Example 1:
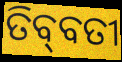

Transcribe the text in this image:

ତିବ୍‌ବତୀ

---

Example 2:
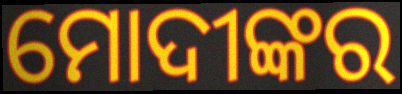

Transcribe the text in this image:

ମୋଦୀଙ୍କର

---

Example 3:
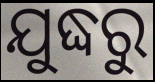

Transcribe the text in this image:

ଯୁଦ୍ଧରୁ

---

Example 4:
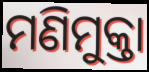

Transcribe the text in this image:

ମଣିମୁକ୍ତା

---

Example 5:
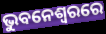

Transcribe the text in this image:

ଭୁବନେଶ୍ଵରରେ